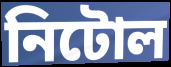
নিটোল